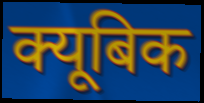
क्यूबिक